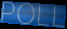
POLL